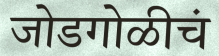
जोडगोळीचं